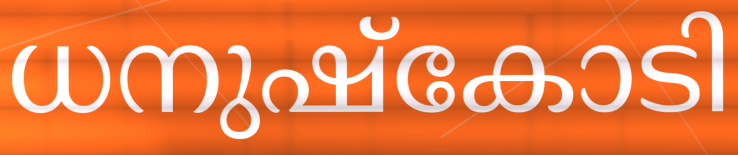
ധനുഷ്കോടി